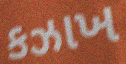
કઝાખ